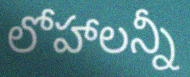
లోహాలన్నీ